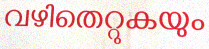
വഴിതെറ്റുകയും